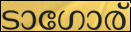
ടാഗോര്